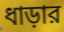
ধাড়ার